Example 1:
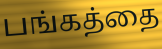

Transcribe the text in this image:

பங்கத்தை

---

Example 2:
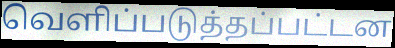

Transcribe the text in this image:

வெளிப்படுத்தப்பட்டன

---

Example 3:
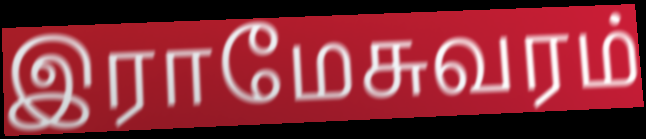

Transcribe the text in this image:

இராமேசுவரம்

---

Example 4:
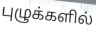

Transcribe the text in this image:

புழுக்களில்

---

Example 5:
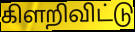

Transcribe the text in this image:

கிளறிவிட்டு